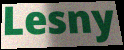
Lesny